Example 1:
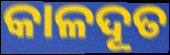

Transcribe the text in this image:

କାଳଦୂତ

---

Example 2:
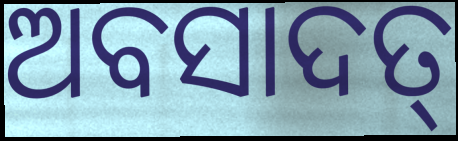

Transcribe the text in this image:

ଅବସାଦତ୍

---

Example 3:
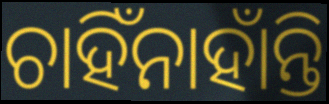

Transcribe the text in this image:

ଚାହିଁନାହାଁନ୍ତି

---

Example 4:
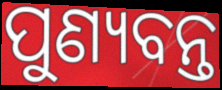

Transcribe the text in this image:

ପୁଣ୍ୟବନ୍ତ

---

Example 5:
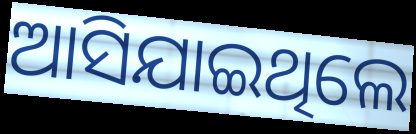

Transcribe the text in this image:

ଆସିଯାଇଥିଲେ